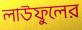
লাউফুলের